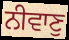
ਨੀਵਾਣੁ